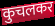
कुचलकर